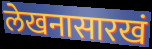
लेखनासारखं